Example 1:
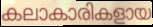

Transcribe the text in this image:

കലാകാരികളായ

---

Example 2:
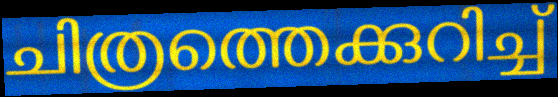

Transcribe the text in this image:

ചിത്രത്തെക്കുറിച്ച്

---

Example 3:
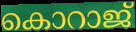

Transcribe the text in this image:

കൊറാജ്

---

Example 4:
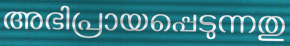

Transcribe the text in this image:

അഭിപ്രായപ്പെടുന്നതു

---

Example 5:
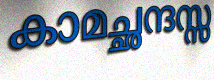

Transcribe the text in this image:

കാമച്ഛന്ദസ്സ